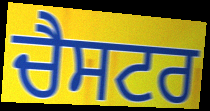
ਚੈਸਟਰ